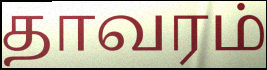
தாவரம்